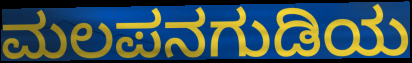
ಮಲಪನಗುಡಿಯ